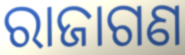
ରାଜାଗଣ